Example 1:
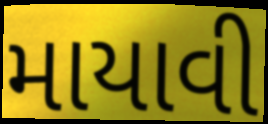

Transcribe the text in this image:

માયાવી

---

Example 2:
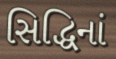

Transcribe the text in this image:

સિદ્ધિનાં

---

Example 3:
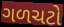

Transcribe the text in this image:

ગળચટો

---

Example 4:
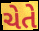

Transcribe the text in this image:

ચેતે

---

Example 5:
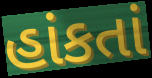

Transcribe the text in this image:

હાંકતાં